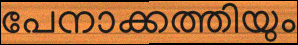
പേനാക്കത്തിയും